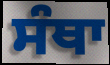
ਸੰਥਾ